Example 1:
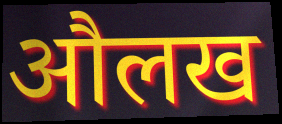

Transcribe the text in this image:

औलख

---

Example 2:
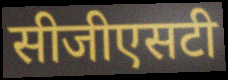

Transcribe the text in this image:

सीजीएसटी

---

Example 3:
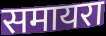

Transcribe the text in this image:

समायरा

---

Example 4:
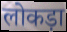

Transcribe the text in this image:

लोकड़ा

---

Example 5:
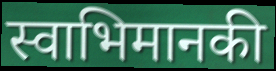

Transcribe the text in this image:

स्वाभिमानकी